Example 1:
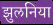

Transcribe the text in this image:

झुलनिया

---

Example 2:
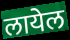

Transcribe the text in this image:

लायेल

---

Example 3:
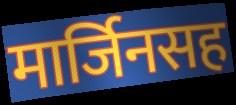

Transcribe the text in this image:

मार्जिनसह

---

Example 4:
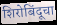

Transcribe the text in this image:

शिरोबिंदूचा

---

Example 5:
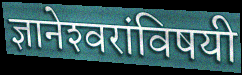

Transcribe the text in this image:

ज्ञानेश्वरांविषयी